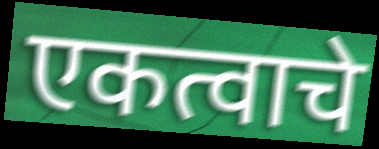
एकत्वाचे